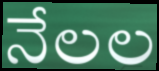
నేలల